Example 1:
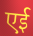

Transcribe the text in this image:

एई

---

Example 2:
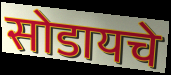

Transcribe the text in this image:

सोडायचे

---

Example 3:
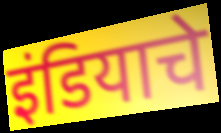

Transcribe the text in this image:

इंडियाचे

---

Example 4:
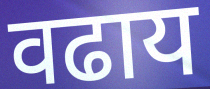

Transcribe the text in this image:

वढाय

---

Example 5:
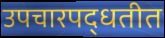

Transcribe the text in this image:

उपचारपद्धतीत